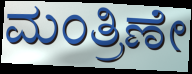
ಮಂತ್ರಿಣೇ